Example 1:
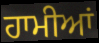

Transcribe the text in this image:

ਹਾਮੀਆਂ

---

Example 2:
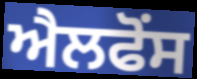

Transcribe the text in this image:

ਐਲਫੋਂਸ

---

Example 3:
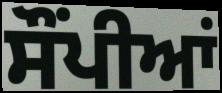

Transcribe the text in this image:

ਸੌਂਪੀਆਂ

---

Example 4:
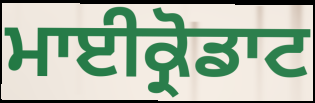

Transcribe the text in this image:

ਮਾਈਕ੍ਰੋਡਾਟ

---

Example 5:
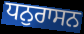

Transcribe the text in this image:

ਧਨੁਰਾਸਨ